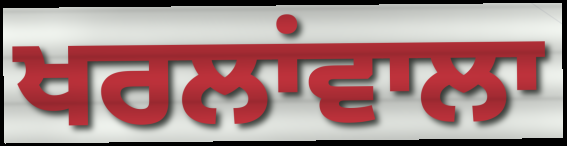
ਖਰਲਾਂਵਾਲਾ